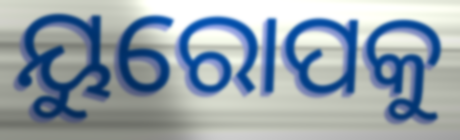
ୟୁରୋପକୁ